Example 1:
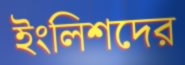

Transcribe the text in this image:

ইংলিশদের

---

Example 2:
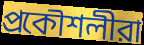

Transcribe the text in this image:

প্রকৌশলীরা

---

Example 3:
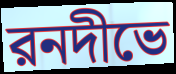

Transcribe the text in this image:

রনদীভে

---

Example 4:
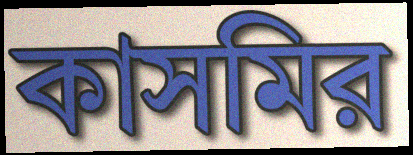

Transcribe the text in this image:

কাসমির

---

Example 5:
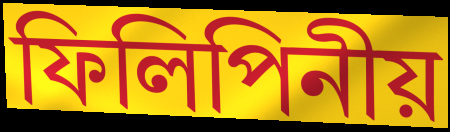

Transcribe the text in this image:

ফিলিপিনীয়